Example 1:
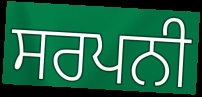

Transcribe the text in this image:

ਸਰਪਨੀ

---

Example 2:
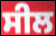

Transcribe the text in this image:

ਸੀਲ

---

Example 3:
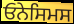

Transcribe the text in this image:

ਓਨੇਸਿਮਸ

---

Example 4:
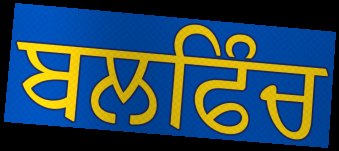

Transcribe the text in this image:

ਬਲਫਿੰਚ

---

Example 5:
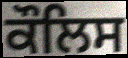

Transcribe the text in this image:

ਕੌਲਿਸ